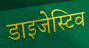
डाइजेस्टिव